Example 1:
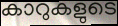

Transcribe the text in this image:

കാറുകളുടെ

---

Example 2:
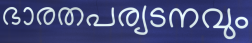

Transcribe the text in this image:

ഭാരതപര്യടനവും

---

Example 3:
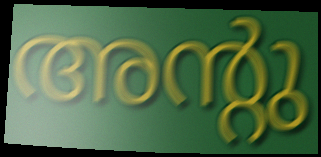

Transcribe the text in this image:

അന്റു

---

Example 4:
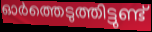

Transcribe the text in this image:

ഓർത്തെടുത്തിട്ടുണ്ട്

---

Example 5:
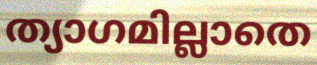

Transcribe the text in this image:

ത്യാഗമില്ലാതെ